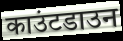
काउंटडाउन